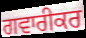
ਗਵਾਰੀਕਰ